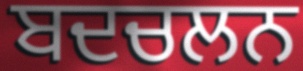
ਬਦਚਲਨ